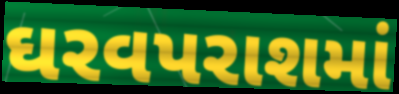
ઘરવપરાશમાં